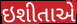
ઇશીતાએ